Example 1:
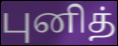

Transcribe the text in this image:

புனித்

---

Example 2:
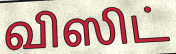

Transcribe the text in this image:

விஸிட்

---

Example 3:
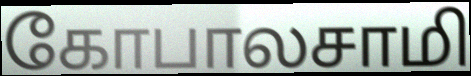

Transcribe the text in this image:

கோபாலசாமி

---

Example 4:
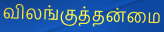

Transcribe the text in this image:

விலங்குத்தன்மை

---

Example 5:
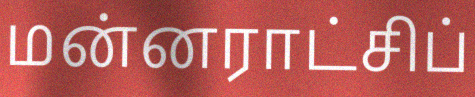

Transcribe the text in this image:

மன்னராட்சிப்